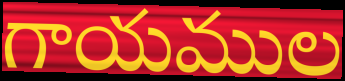
గాయముల